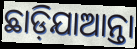
ଛାଡ଼ିଯାଆନ୍ତା